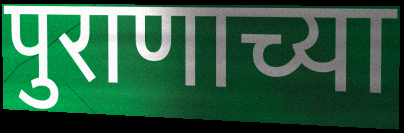
पुराणाच्या